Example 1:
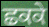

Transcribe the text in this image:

ਛਕਕੇ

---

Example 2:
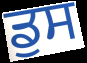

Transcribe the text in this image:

ਡੁਸ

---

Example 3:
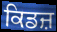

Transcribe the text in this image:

ਕਿਡਜ਼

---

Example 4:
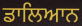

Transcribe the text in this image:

ਡਾਲਿਆਨ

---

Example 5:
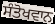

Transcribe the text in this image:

ਸੰਤੋਖਵਾਨ